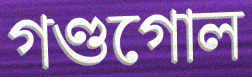
গণ্ডগোল